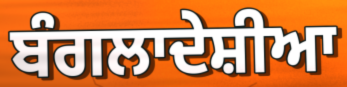
ਬੰਗਲਾਦੇਸ਼ੀਆ